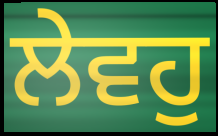
ਲੇਵਹੁ